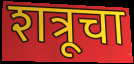
शत्रूचा